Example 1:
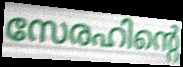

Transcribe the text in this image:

സേരഹിന്റെ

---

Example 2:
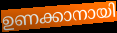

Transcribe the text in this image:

ഉണക്കാനായി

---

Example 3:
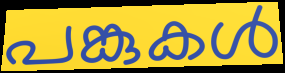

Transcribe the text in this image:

പങ്കുകൾ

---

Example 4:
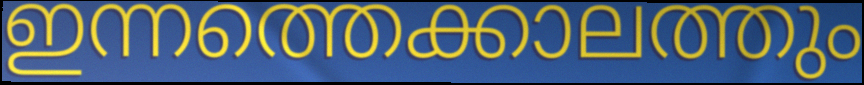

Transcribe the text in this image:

ഇന്നത്തെക്കാലത്തും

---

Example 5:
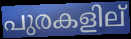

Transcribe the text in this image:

പുരകളില്